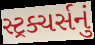
સ્ટ્રક્ચર્સનું